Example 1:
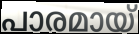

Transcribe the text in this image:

പാരമായ്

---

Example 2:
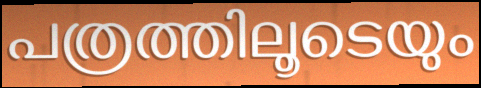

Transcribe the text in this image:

പത്രത്തിലൂടെയും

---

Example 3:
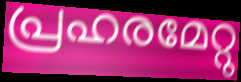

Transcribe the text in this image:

പ്രഹരമേറ്റു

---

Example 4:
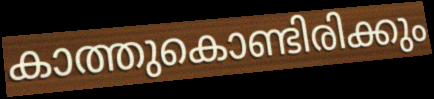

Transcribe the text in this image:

കാത്തുകൊണ്ടിരിക്കും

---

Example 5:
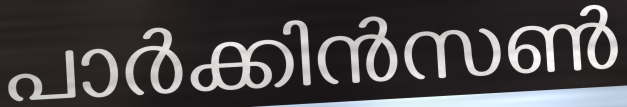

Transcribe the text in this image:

പാർക്കിൻസൺ